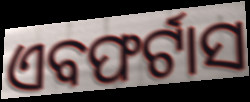
ଏବଫର୍ଟାସ